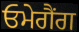
ਓਮੇਗੈਂਗ